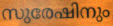
സുരേഷിനും